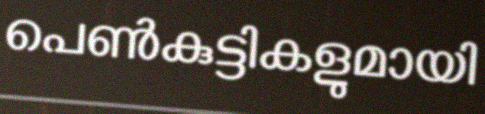
പെൺകുട്ടികളുമായി